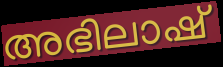
അഭിലാഷ്